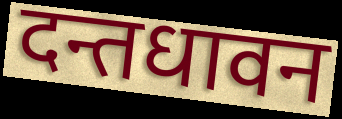
दन्तधावन